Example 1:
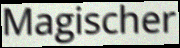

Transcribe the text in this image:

Magischer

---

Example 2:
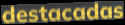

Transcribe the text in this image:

destacadas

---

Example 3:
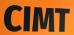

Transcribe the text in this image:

CIMT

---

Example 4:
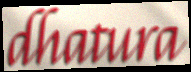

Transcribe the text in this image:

dhatura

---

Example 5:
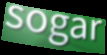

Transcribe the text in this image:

sogar